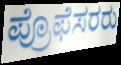
ಪ್ರೊಫೆಸರರು